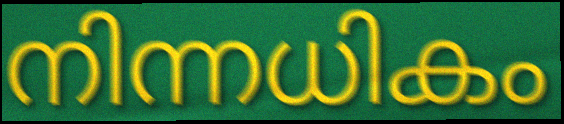
നിന്നധികം